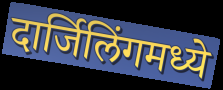
दार्जिलिंगमध्ये